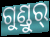
ଗୁଣ୍ଡୁର୍